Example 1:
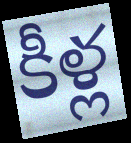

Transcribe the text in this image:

కీళ్ల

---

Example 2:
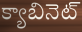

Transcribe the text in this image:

క్యాబినెట్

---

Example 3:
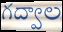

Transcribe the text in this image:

గద్వాల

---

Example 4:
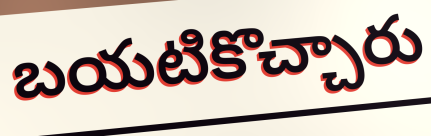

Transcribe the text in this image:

బయటికొచ్చారు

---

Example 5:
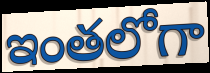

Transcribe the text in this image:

ఇంతలోగా